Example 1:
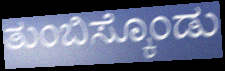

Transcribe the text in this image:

ತುಂಬಿಸ್ಕೊಂಡು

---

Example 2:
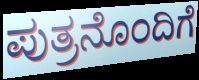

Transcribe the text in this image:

ಪುತ್ರನೊಂದಿಗೆ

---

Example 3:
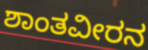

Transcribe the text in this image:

ಶಾಂತವೀರನ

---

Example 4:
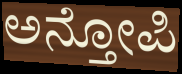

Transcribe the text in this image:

ಅನ್ತೋಪಿ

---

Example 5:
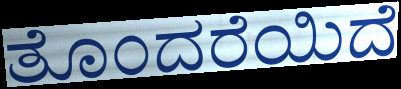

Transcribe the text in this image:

ತೊಂದರೆಯಿದೆ